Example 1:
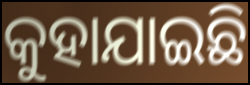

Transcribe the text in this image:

କୁହାଯାଇଛି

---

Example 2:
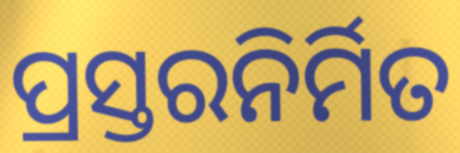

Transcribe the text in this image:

ପ୍ରସ୍ତରନିର୍ମିତ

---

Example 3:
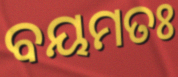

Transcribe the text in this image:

ବୟମତଃ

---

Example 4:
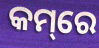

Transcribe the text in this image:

କମ୍‌ରେ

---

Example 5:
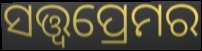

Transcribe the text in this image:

ସତ୍ତ୍ୱପ୍ରେମର